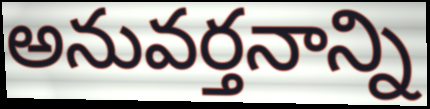
అనువర్తనాన్ని